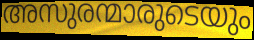
അസുരന്മാരുടെയും